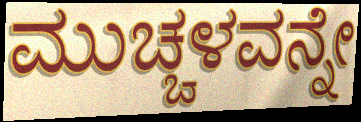
ಮುಚ್ಚಳವನ್ನೇ